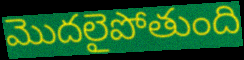
మొదలైపోతుంది